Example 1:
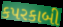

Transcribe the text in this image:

કપરકાબી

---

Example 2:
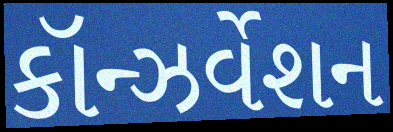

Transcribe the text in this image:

કૉન્ઝર્વેશન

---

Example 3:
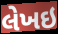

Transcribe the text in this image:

લેખઇ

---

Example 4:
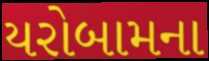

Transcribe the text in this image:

યરોબામના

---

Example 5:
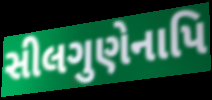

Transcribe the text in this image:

સીલગુણેનાપિ